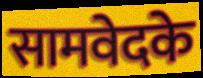
सामवेदके